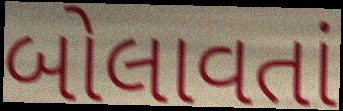
બોલાવતાં